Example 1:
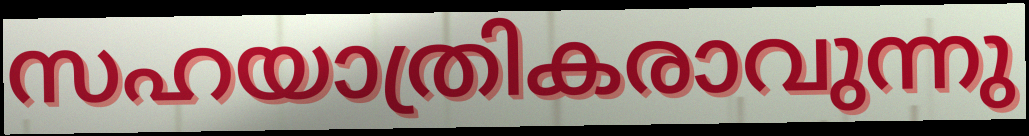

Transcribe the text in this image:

സഹയാത്രികരാവുന്നു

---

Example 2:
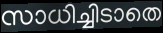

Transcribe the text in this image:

സാധിച്ചിടാതെ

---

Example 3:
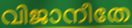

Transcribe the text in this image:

വിജാനീതേ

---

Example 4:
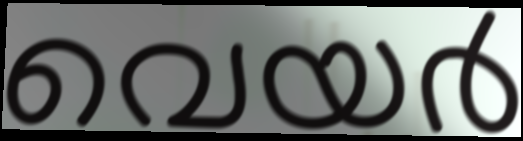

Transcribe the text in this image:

വെയർ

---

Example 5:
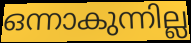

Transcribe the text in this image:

ഒന്നാകുന്നില്ല